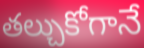
తల్చుకోగానే